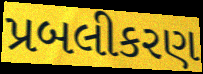
પ્રબલીકરણ